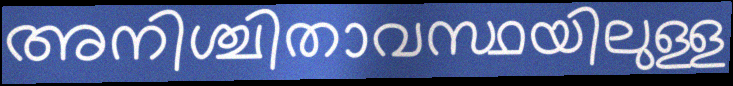
അനിശ്ചിതാവസ്ഥയിലുള്ള